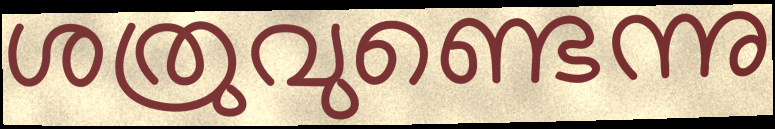
ശത്രുവുണ്ടെന്നു